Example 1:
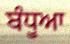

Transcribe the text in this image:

ਬੰਧੂਆ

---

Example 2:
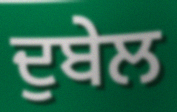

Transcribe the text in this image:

ਦੁਬੇਲ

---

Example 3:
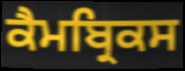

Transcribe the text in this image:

ਕੈਮਬ੍ਰਿਕਸ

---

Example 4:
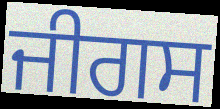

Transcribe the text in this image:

ਜੀਗਸ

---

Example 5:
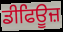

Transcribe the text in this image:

ਡੀਫਿਊਜ਼